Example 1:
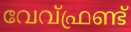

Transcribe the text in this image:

വേവ്ഫ്രണ്ട്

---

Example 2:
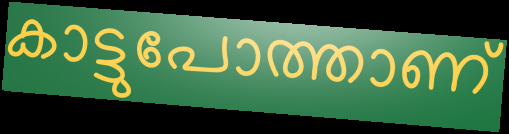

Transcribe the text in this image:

കാട്ടുപോത്താണ്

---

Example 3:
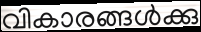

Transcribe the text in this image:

വികാരങ്ങൾക്കു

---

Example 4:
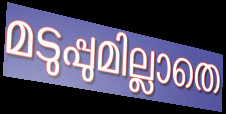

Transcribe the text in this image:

മടുപ്പുമില്ലാതെ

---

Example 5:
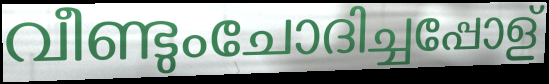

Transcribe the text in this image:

വീണ്ടുംചോദിച്ചപ്പോള്